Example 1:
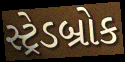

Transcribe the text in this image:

સ્ટ્રેડબ્રોક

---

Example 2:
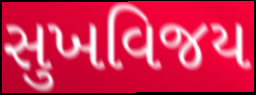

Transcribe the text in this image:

સુખવિજય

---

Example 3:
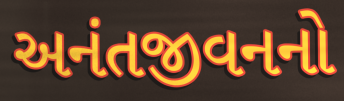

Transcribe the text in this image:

અનંતજીવનનો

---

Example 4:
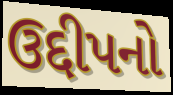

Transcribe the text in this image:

ઉદ્દીપનો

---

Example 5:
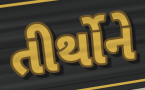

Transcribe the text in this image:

તીર્થોને